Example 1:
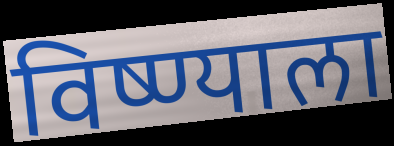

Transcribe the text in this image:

विष्ण्याला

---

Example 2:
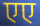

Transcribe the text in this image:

एए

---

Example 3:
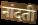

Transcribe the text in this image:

नांदती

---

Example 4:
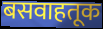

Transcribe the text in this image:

बसवाहतूक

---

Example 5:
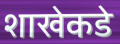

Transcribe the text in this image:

शाखेकडे